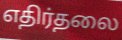
எதிர்தலை